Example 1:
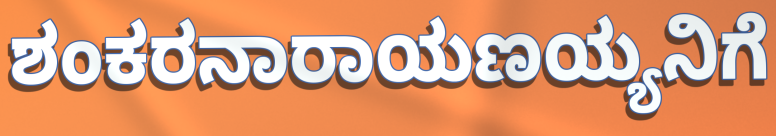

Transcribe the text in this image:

ಶಂಕರನಾರಾಯಣಯ್ಯನಿಗೆ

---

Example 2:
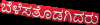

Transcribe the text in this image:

ಬೆಳೆಸತೊಡಗಿದರು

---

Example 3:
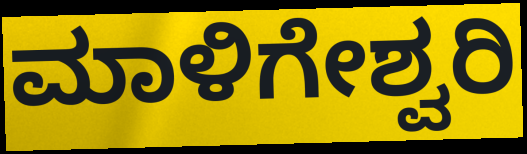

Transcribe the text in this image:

ಮಾಳಿಗೇಶ್ವರಿ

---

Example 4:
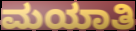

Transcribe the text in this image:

ಮಯಾತಿ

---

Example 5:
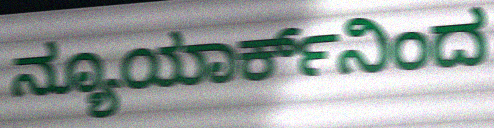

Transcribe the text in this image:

ನ್ಯೂಯಾರ್ಕ್‌ನಿಂದ